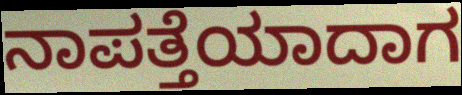
ನಾಪತ್ತೆಯಾದಾಗ